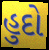
હુદો